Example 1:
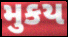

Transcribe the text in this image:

મુકય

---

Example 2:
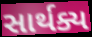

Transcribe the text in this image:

સાર્થક્ય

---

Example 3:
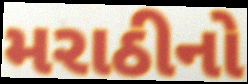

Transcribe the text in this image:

મરાઠીનો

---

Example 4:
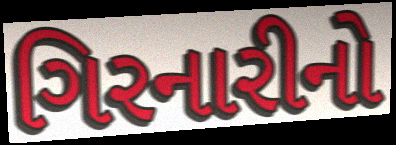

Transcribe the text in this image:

ગિરનારીનો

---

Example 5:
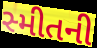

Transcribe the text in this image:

સ્મીતની